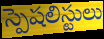
స్పెషలిస్టులు